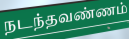
நடந்தவண்ணம்